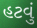
હટવું